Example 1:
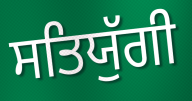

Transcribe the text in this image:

ਸਤਿਯੁੱਗੀ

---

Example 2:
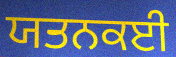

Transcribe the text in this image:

ਯਤਨਕਈ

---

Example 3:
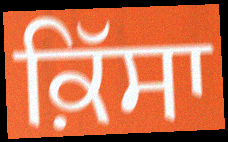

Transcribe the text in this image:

ਕ਼ਿੱਸਾ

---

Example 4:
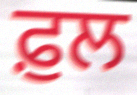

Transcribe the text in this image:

ਫ਼ੁਲ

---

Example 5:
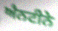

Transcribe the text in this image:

ਐਨਟੀਨੇ